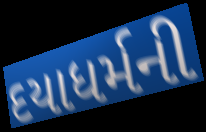
દયાધર્મની